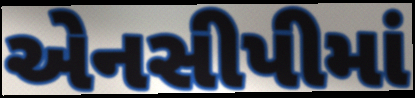
એનસીપીમાં